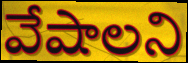
వేషాలని